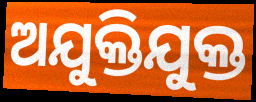
ଅଯୁକ୍ତିଯୁକ୍ତ